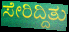
ಸೇರಿದ್ದಿತು